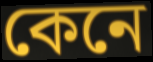
কেনে